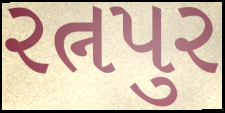
રત્નપુર